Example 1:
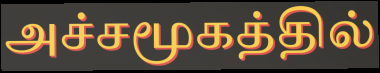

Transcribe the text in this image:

அச்சமூகத்தில்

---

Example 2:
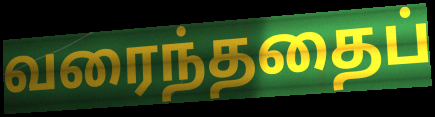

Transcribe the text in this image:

வரைந்ததைப்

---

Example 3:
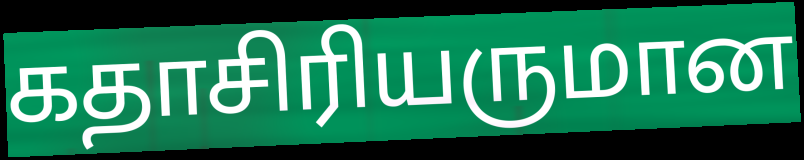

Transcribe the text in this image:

கதாசிரியருமான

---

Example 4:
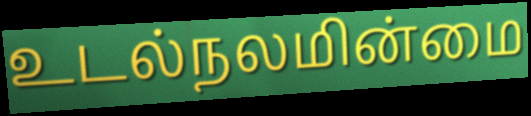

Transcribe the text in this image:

உடல்நலமின்மை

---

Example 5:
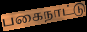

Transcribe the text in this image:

பகைநாட்டு